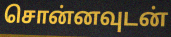
சொன்னவுடன்